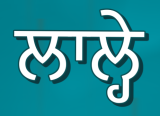
ਲਾਲ੍ਹੇ